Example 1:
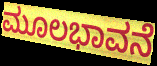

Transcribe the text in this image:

ಮೂಲಭಾವನೆ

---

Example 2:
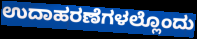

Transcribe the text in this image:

ಉದಾಹರಣೆಗಳಲ್ಲೊಂದು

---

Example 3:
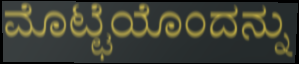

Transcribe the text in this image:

ಮೊಟ್ಟೆಯೊಂದನ್ನು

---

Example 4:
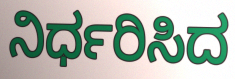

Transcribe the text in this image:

ನಿರ್ಧರಿಸಿದ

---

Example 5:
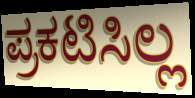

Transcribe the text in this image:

ಪ್ರಕಟಿಸಿಲ್ಲ